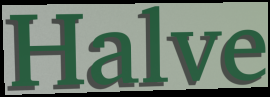
Halve